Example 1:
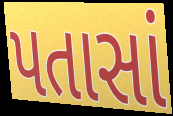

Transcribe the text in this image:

પતાસાં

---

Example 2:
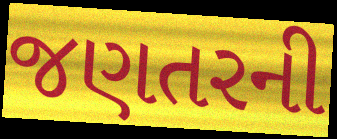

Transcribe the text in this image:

જણતરની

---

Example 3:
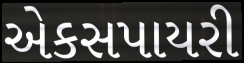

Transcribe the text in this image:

એકસપાયરી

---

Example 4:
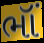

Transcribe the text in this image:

ભૉં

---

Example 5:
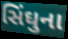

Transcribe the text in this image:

સિંઘુના